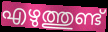
എഴുത്തുണ്ട്